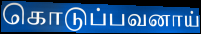
கொடுப்பவனாய்